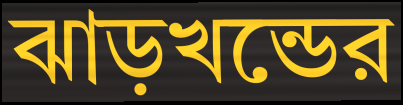
ঝাড়খন্ডের